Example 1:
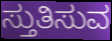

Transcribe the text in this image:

ಸ್ತುತಿಸುವ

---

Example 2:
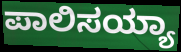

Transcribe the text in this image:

ಪಾಲಿಸಯ್ಯಾ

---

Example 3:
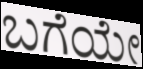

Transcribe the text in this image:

ಬಗೆಯೇ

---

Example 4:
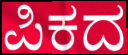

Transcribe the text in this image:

ಪಿಕದ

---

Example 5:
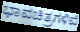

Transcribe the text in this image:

ಭಾವಚಿತ್ರಗಳಿವೆ